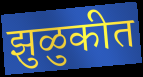
झुळुकीत